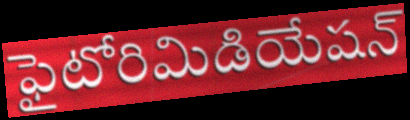
ఫైటోరిమిడియేషన్